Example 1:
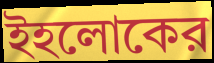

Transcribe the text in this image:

ইহলোকের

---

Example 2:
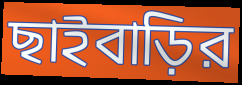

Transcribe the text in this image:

ছাইবাড়ির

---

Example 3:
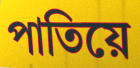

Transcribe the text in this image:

পাতিয়ে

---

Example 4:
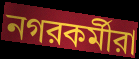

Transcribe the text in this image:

নগরকর্মীরা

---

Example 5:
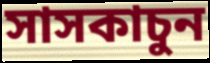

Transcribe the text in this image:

সাসকাচুন